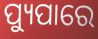
ପ୍ୟୁପାରେ